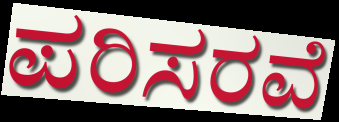
ಪರಿಸರವೆ